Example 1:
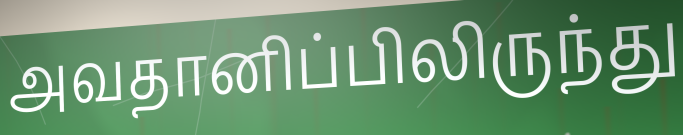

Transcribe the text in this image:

அவதானிப்பிலிருந்து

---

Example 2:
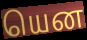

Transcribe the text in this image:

யென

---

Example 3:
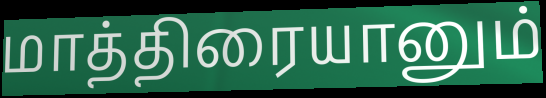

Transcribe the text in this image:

மாத்திரையானும்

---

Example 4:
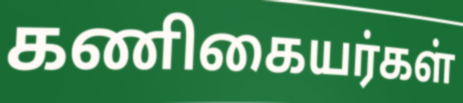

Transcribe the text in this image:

கணிகையர்கள்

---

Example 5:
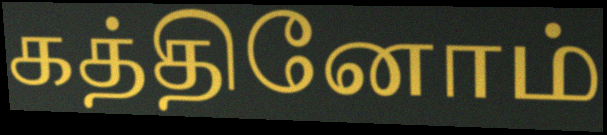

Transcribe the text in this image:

கத்தினோம்